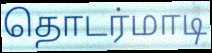
தொடர்மாடி